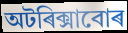
অটৰিক্সাবোৰ